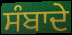
ਸੰਬਾਦੇ